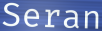
Seran